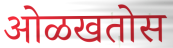
ओळखतोस